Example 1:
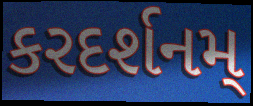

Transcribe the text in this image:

કરદર્શનમ્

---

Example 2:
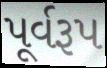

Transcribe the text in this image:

પૂર્વરૂપ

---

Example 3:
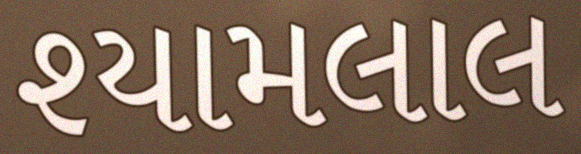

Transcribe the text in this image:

શ્યામલાલ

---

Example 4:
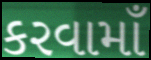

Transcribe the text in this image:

કરવામાઁ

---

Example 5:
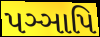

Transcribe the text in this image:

પઞ્ઞાપિ